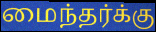
மைந்தர்க்கு